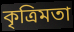
কৃত্রিমতা